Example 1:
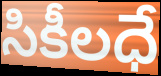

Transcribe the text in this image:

సికీలధే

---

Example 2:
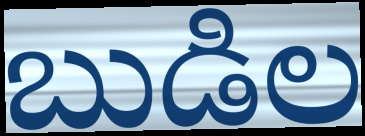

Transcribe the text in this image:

బుడిల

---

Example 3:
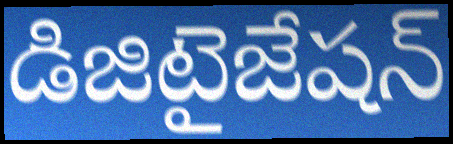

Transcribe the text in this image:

డిజిటైజేషన్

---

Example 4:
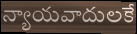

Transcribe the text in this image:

న్యాయవాదులకే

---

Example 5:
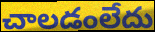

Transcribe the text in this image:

చాలడంలేదు